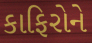
કાફિરોને